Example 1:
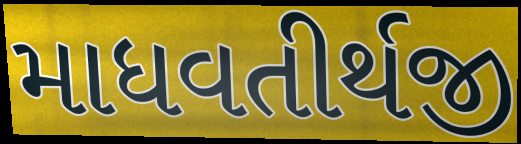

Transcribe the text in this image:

માધવતીર્થજી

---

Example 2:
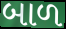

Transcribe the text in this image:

બાળ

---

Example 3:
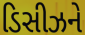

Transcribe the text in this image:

ડિસીઝને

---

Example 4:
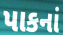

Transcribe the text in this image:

પાકનાં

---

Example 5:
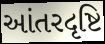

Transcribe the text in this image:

આંતરદૃષ્ટિ